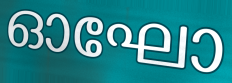
ഓഘോ